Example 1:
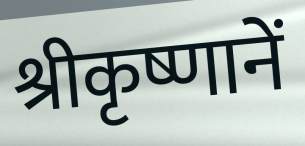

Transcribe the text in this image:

श्रीकृष्णानें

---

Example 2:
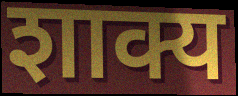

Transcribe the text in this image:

शाक्य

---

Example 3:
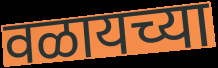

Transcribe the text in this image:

वळायच्या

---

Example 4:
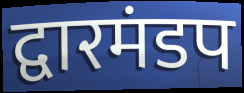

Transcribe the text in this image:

द्वारमंडप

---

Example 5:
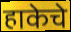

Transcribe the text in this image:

हाकेचे